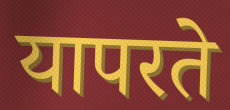
यापरते